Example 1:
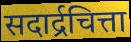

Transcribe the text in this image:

सदार्द्रचित्ता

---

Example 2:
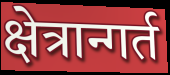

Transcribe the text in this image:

क्षेत्रान्गर्त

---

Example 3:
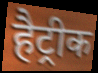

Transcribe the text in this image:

हैट्रीक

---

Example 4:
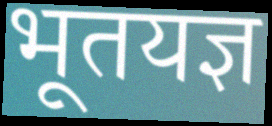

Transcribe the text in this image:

भूतयज्ञ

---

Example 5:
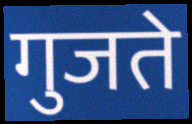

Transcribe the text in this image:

गुजते